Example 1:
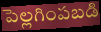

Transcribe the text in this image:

పెల్లగింపబడి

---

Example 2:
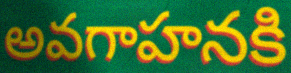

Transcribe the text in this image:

అవగాహనకి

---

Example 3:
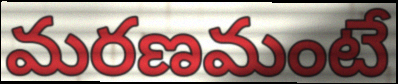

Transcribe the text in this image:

మరణమంటే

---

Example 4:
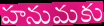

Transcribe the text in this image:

హనుమకు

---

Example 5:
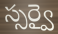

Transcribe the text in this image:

స్సర్వై